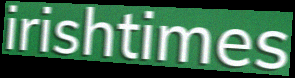
irishtimes